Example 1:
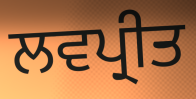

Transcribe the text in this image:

ਲਵਪ੍ਰੀਤ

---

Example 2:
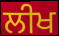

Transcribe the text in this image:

ਲੀਖ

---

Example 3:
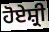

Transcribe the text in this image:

ਹੋਏਸ਼੍ਰੀ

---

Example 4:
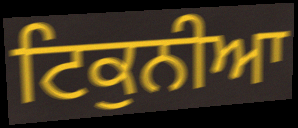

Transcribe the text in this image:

ਟਿਕੁਨੀਆ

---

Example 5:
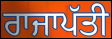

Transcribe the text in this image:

ਰਾਜਾਪੱਤੀ